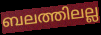
ബലത്തിലല്ല